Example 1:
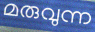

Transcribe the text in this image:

മരുവുന്ന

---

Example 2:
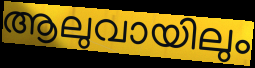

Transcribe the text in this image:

ആലുവായിലും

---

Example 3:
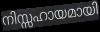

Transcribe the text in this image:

നിസ്സഹായമായി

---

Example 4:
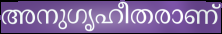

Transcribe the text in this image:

അനുഗൃഹീതരാണ്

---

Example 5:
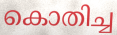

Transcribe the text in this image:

കൊതിച്ച